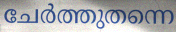
ചേർത്തുതന്നെ